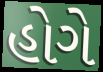
હોગે